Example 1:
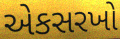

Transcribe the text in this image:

એકસરખો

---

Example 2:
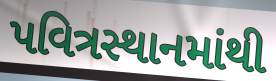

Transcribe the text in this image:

પવિત્રસ્થાનમાંથી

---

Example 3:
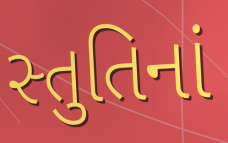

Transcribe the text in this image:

સ્તુતિનાં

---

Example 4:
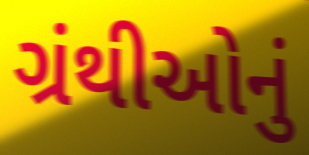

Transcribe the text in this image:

ગ્રંથીઓનું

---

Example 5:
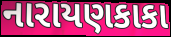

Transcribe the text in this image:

નારાયણકાકા